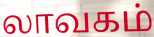
லாவகம்